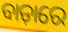
ବାଡ଼ାରେ